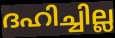
ദഹിച്ചില്ല